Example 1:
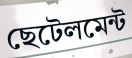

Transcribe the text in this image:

ছেটেলমেন্ট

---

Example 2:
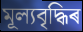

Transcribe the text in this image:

মূল্যবৃদ্ধিৰ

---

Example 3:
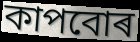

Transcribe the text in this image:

কাপবোৰ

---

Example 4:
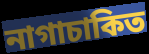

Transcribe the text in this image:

নাগাচাকিত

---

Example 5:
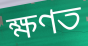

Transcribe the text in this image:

ক্ষণত